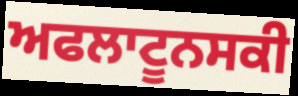
ਅਫਲਾਟੂਨਸਕੀ